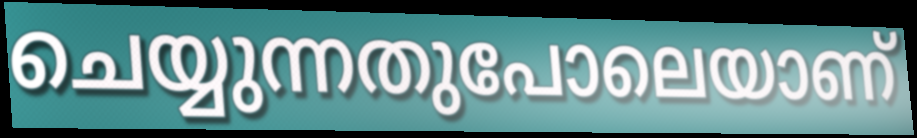
ചെയ്യുന്നതുപോലെയാണ്